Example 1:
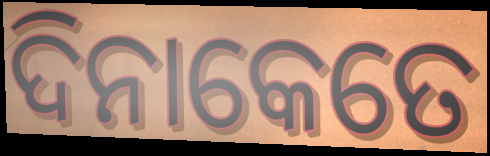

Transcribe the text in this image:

ଦିନାକେତେ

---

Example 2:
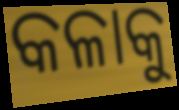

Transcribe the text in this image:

କଳାକୁ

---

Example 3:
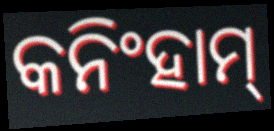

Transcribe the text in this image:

କନିଂହାମ୍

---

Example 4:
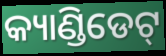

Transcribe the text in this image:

କ୍ୟାଣ୍ଡିଡେଟ୍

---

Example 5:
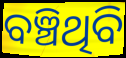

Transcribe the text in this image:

ବଞ୍ଚିଥିବି